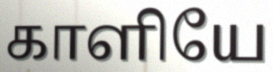
காளியே